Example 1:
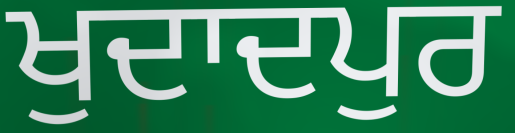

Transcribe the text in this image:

ਖੁਦਾਦਪੁਰ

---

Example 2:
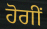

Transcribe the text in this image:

ਹੋਗੀਂ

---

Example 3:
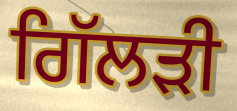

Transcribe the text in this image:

ਗਿੱਲੜੀ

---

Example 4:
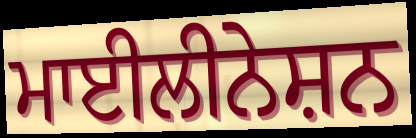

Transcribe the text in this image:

ਮਾਈਲੀਨੇਸ਼ਨ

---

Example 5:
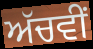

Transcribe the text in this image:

ਅੱਚਵੀਂ